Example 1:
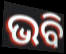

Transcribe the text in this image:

ଭବି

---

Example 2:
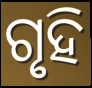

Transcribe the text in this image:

ଗୃହି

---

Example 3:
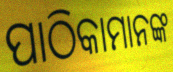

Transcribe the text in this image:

ପାଠିକାମାନଙ୍କ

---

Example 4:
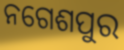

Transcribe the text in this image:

ନଗେଶପୁର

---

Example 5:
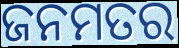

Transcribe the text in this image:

ଜନମତର